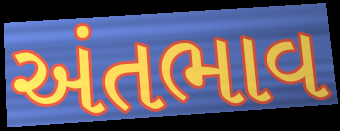
અંતભાવ